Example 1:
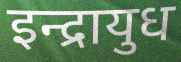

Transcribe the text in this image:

इन्द्रायुध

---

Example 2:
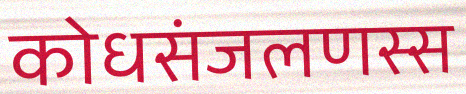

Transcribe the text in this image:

कोधसंजलणस्स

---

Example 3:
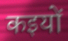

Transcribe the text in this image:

कइयों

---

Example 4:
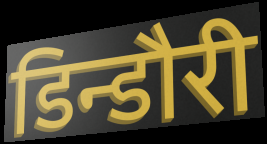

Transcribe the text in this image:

डिन्डौरी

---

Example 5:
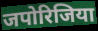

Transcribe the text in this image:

जपोरिजिया